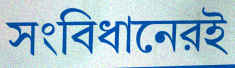
সংবিধানেরই